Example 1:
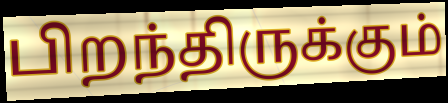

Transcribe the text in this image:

பிறந்திருக்கும்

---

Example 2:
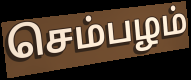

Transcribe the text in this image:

செம்பழம்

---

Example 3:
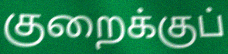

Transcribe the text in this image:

குறைக்குப்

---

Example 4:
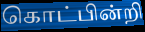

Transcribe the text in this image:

கொட்பின்றி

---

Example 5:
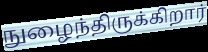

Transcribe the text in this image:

நுழைந்திருக்கிறார்